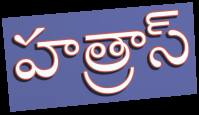
హత్రాస్